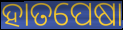
ହାତପେଷା